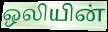
ஒலியின்